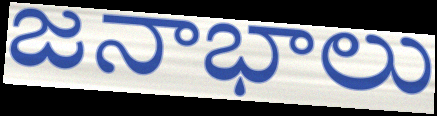
జనాభాలు